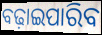
ବଢ଼ାଇପାରିବ